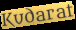
Kudarat